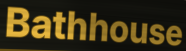
Bathhouse